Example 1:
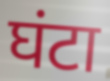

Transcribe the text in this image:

घंटा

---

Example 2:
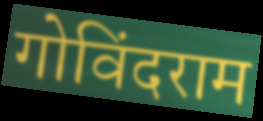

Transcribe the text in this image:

गोविंदराम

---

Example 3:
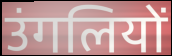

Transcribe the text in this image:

उंगलियों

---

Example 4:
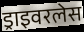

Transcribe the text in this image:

ड्राइवरलेस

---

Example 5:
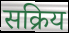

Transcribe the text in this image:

सक्रिय